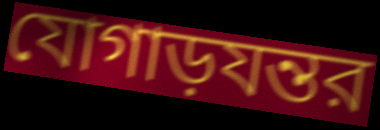
যোগাড়যন্তর